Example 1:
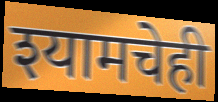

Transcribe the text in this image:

श्यामचेही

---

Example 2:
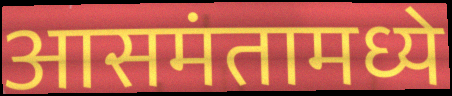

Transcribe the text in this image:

आसमंतामध्ये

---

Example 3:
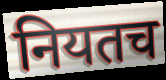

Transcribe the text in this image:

नियतच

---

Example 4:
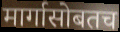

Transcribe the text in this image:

मार्गासोबतच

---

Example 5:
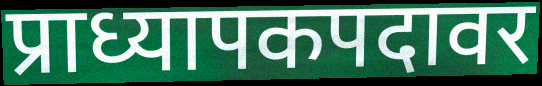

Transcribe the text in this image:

प्राध्यापकपदावर